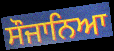
ਸੌਜਾਨਿਆ